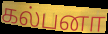
கல்பனா